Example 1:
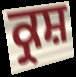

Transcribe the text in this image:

ਕ੍ਰਸ਼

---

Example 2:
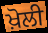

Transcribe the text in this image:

ਖ਼ੋਲੀ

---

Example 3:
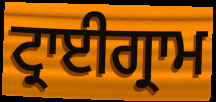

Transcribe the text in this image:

ਟ੍ਰਾਈਗ੍ਰਾਮ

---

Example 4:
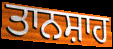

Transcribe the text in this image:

ਤਾਨਸ਼ਾਹ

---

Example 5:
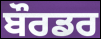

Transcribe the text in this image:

ਬੌਰਡਰ